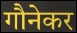
गौनेकर